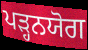
ਪੜ੍ਹਨਯੋਗ